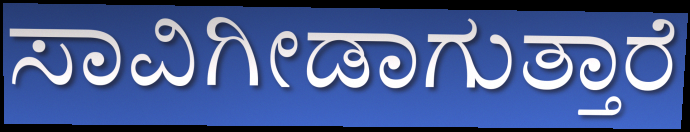
ಸಾವಿಗೀಡಾಗುತ್ತಾರೆ